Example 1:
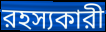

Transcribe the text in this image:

রহস্যকারী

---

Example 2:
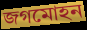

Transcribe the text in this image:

জগমোহন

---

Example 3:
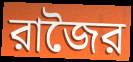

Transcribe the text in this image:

রাজৈর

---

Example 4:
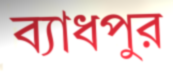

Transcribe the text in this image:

ব্যাধপুর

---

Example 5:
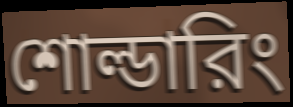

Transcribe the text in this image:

শোল্ডারিং